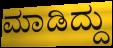
ಮಾಡಿದ್ದು